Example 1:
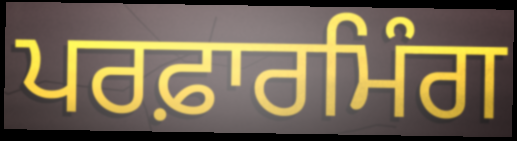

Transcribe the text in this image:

ਪਰਫ਼ਾਰਮਿੰਗ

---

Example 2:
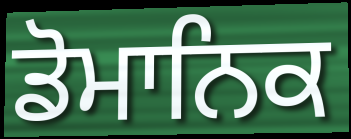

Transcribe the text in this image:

ਡੋਮਾਨਿਕ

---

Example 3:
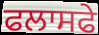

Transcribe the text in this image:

ਫਲਾਸਫੇ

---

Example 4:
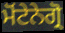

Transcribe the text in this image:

ਮੋਂਟੇਨੇਗ੍ਰੋ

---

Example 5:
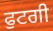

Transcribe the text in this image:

ਫੁਟਗੀ